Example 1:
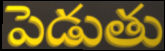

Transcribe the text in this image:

పెడుతు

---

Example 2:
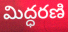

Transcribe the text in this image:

మిద్ధరణి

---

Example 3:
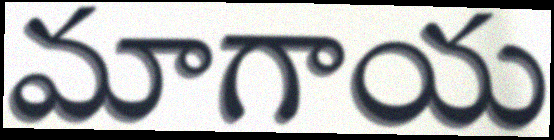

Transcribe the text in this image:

మాగాయ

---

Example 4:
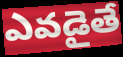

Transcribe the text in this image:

ఎవడైతే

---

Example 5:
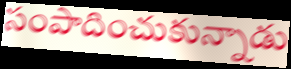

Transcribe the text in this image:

సంపాదించుకున్నాడు